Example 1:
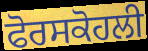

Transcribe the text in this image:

ਫੋਰਸਕੋਹਲੀ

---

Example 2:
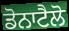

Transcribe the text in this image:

ਡੋਨਾਟੈਲੋ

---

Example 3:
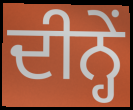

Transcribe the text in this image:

ਦੀਨ੍ਹੇਂ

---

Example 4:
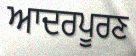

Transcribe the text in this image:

ਆਦਰਪੂਰਣ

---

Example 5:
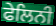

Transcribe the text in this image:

ਫੇਲਿਨੀ